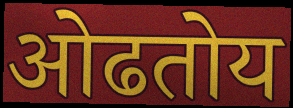
ओढतोय